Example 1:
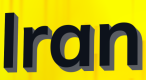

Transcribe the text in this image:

Iran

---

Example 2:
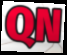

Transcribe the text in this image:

QN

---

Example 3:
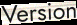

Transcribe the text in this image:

Version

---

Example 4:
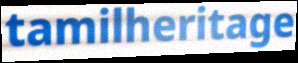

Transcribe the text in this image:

tamilheritage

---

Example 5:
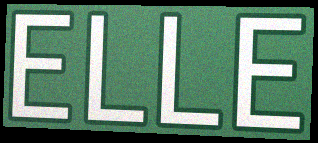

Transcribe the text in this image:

ELLE